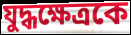
যুদ্ধক্ষেত্রকে